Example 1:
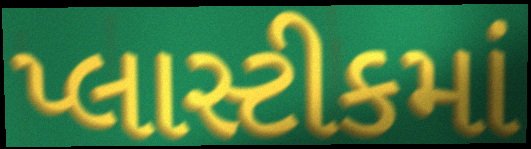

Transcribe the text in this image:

પ્લાસ્ટીકમાં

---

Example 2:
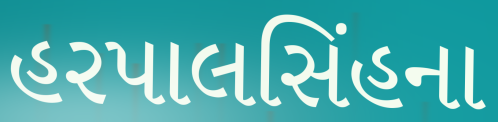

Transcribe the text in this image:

હરપાલસિંહના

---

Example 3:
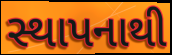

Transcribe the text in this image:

સ્થાપનાથી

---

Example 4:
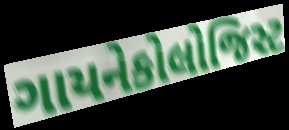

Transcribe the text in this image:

ગાયનેકોલોજિસ્ટ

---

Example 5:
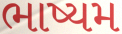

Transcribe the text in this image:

ભાષ્યમ